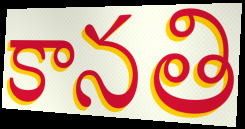
కానతి